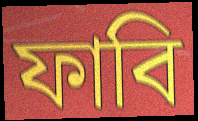
ফাবি